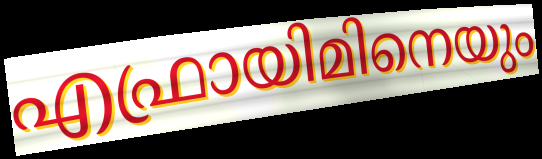
എഫ്രായിമിനെയും